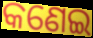
କଣେଇ